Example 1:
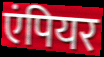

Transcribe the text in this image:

एंपियर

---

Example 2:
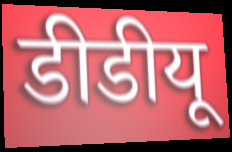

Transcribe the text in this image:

डीडीयू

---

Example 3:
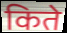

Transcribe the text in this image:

किते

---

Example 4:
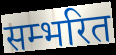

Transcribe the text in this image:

सम्भरित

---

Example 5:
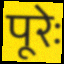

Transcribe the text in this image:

पूरेः